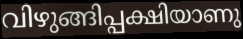
വിഴുങ്ങിപ്പക്ഷിയാണു